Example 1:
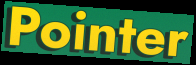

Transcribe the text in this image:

Pointer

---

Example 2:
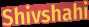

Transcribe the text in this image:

Shivshahi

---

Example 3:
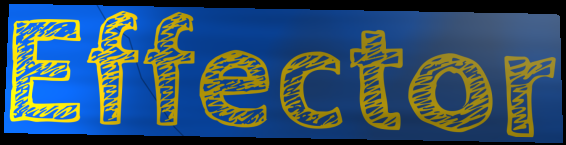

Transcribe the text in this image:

Effector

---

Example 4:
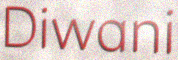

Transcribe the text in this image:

Diwani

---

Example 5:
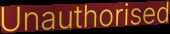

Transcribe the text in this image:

Unauthorised